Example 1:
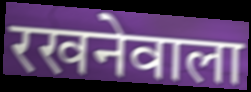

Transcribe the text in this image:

रखनेवाला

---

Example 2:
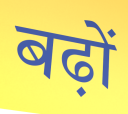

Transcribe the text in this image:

बढ़ों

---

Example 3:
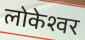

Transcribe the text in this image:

लोकेश्वर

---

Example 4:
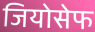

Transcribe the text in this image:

जियोसेफ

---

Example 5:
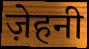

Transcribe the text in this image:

ज़ेहनी